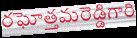
రఘోత్తమరెడ్డిగారి